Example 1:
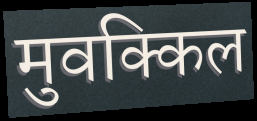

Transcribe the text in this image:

मुवक्किल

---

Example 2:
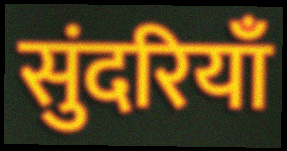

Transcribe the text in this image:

सुंदरियाँ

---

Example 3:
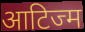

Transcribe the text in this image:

आटिज्म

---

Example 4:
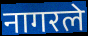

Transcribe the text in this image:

नागरले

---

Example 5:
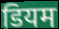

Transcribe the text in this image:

डियम